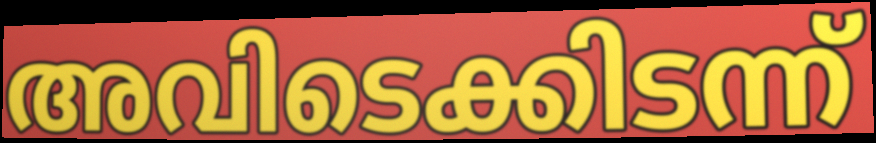
അവിടെക്കിടന്ന്